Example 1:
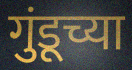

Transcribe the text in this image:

गुंडूच्या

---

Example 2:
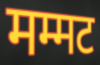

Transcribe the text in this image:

मम्मट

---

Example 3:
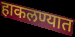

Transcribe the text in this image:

हाकलण्यात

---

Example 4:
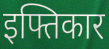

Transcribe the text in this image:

इफ्तिकार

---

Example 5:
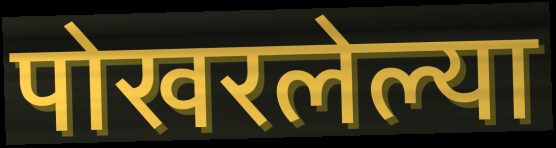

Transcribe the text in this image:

पोखरलेल्या